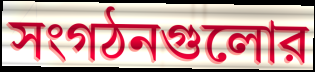
সংগঠনগুলোর